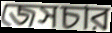
জেসচার